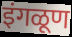
इंगळूण